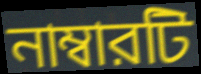
নাম্বারটি